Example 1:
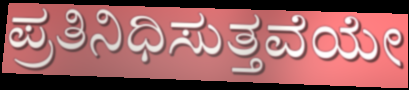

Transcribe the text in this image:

ಪ್ರತಿನಿಧಿಸುತ್ತವೆಯೇ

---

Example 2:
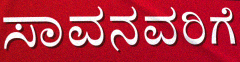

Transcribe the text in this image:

ಸಾವನವರಿಗೆ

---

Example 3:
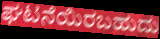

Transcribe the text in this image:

ಘಟನೆಯಿರಬಹುದು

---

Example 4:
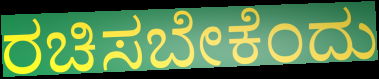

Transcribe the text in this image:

ರಚಿಸಬೇಕೆಂದು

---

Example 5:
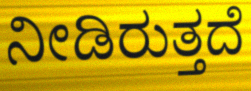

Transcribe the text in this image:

ನೀಡಿರುತ್ತದೆ